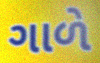
ગાળે